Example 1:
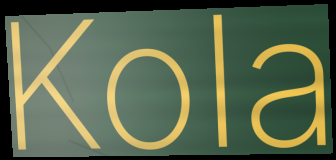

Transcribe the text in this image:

Kola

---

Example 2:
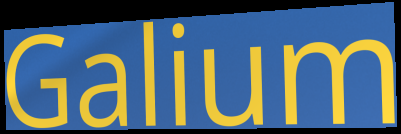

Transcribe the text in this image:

Galium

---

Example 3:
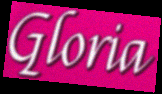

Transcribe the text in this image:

Gloria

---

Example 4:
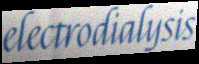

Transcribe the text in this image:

electrodialysis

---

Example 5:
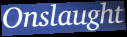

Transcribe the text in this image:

Onslaught